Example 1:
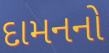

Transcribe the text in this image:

દામનનો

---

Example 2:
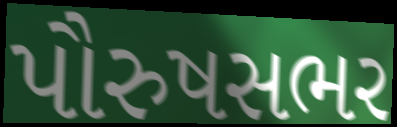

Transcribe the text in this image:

પૌરુષસભર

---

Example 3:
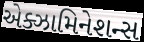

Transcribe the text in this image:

એક્ઝામિનેશન્સ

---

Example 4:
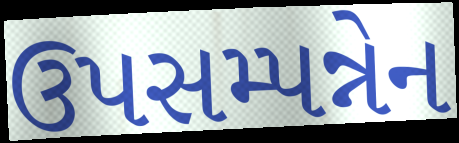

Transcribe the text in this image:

ઉપસમ્પન્નેન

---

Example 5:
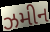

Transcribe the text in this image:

ઝમીન